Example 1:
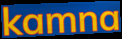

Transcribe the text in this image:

kamna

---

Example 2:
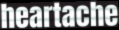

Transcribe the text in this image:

heartache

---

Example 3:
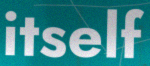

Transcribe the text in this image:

itself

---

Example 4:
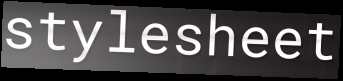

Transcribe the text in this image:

stylesheet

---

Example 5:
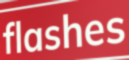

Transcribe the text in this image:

flashes